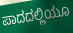
ಪಾದದಲ್ಲಿಯೂ